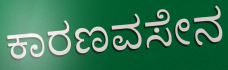
ಕಾರಣವಸೇನ